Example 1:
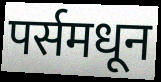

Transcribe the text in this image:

पर्समधून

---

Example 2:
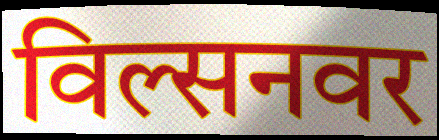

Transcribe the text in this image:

विल्सनवर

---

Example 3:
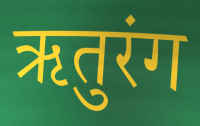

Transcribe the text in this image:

ऋतुरंग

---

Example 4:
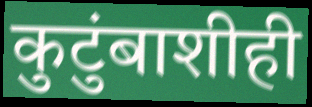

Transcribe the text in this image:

कुटुंबाशीही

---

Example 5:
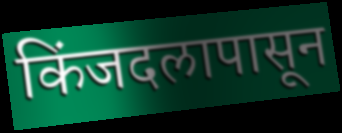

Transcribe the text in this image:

किंजदलापासून